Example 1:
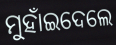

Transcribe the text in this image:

ମୁହାଁଇଦେଲେ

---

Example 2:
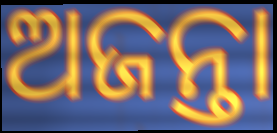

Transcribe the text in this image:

ଅଜନ୍ତା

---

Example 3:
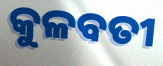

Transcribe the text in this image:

କୁଳବତୀ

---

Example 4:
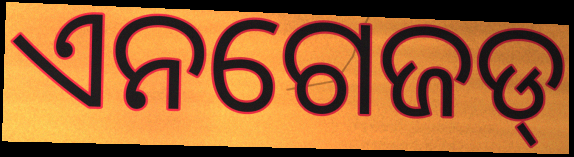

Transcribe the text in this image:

ଏନଗେଜଡ୍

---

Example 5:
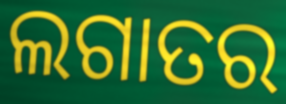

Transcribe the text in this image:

ଲଗାତର